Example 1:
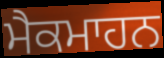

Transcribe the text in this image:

ਮੈਕਮਾਹਨ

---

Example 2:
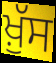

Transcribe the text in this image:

ਖ਼ੁੱਸ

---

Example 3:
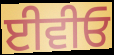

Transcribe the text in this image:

ਈਵੀਓ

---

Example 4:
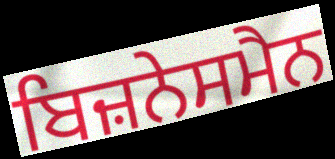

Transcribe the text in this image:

ਬਿਜ਼ਨੇਸਮੈਨ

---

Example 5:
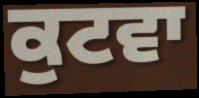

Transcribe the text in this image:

ਕੁਟਵਾ